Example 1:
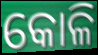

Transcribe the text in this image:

କୋଳି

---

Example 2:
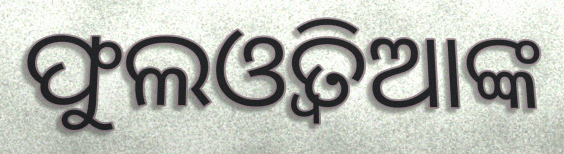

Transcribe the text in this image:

ଫୁଲଓ୍ୱତିଆଙ୍କ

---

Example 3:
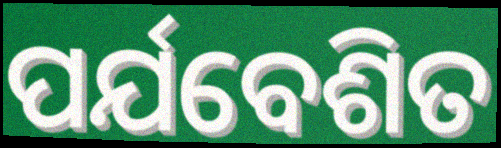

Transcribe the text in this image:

ପର୍ଯବେଶିତ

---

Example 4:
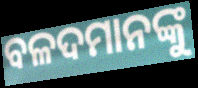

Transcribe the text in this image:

ବଳଦମାନଙ୍କୁ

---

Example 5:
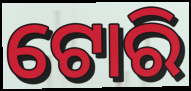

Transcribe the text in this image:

ଟୋରି